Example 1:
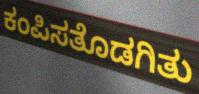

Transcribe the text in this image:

ಕಂಪಿಸತೊಡಗಿತು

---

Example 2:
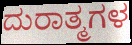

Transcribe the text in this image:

ದುರಾತ್ಮಗಳ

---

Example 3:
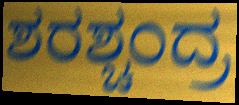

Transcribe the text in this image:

ಶರಶ್ಚಂದ್ರ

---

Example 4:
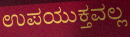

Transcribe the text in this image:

ಉಪಯುಕ್ತವಲ್ಲ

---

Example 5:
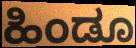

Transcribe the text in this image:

ಹಿಂಡೂ